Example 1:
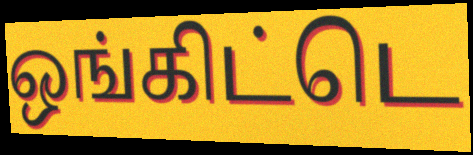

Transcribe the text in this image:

ஒங்கிட்டெ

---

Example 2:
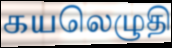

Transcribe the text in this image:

கயலெழுதி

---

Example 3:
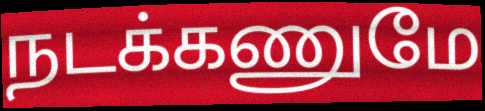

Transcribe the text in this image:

நடக்கணுமே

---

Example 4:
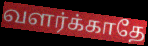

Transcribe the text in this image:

வளர்க்காதே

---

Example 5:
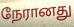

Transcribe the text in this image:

நேரானது